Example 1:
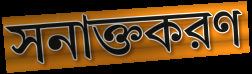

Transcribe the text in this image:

সনাক্তকরণ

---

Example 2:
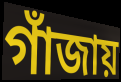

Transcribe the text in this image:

গাঁজায়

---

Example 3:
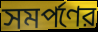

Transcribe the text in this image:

সমর্পণের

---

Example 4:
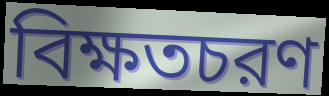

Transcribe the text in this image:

বিক্ষতচরণ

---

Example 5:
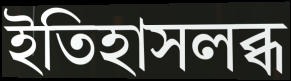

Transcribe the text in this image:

ইতিহাসলব্ধ